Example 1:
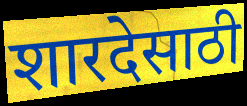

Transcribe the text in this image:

शारदेसाठी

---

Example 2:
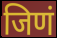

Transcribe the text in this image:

जिणं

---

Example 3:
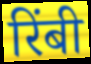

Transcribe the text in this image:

रिंबी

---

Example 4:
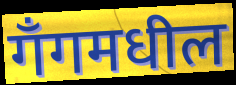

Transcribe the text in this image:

गँगमधील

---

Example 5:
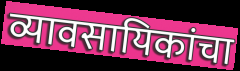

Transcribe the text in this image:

व्यावसायिकांचा